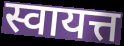
स्वायत्त